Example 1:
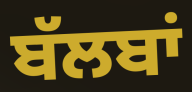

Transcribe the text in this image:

ਬੱਲਬਾਂ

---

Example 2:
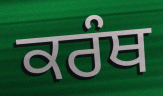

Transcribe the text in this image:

ਕਰੰਥ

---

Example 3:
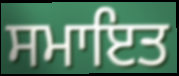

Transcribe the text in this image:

ਸਮਾਇਤ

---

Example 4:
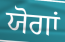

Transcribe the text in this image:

ਯੋਗਾਂ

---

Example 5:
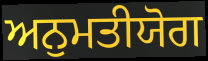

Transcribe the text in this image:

ਅਨੁਮਤੀਯੋਗ